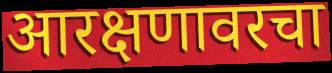
आरक्षणावरचा